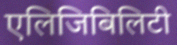
एलिजिबिलिटी